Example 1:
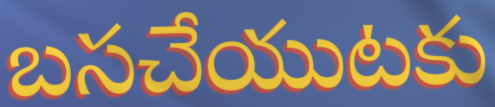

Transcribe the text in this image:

బసచేయుటకు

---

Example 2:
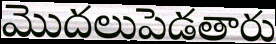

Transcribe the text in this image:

మొదలుపెడతారు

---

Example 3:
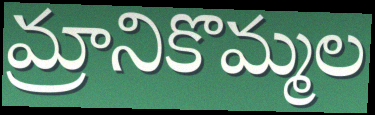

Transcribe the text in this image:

మ్రానికొమ్మల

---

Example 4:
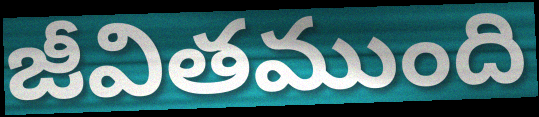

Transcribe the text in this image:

జీవితముంది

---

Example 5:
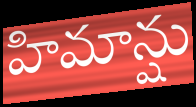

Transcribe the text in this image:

హిమాన్షు